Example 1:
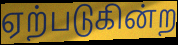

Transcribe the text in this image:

ஏற்படுகின்ற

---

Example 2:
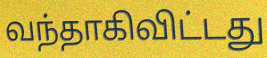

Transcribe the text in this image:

வந்தாகிவிட்டது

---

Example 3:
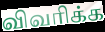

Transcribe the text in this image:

விவரிக்க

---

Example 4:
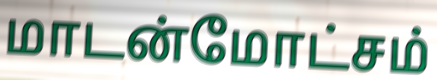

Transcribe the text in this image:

மாடன்மோட்சம்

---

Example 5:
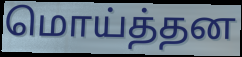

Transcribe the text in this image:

மொய்த்தன